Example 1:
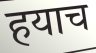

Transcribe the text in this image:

हयाच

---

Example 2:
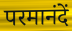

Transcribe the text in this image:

परमानंदें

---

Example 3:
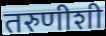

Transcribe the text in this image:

तरुणीशी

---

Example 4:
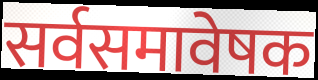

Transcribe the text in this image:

सर्वसमावेषक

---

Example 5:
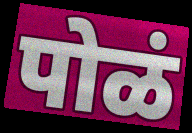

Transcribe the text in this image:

पोळं